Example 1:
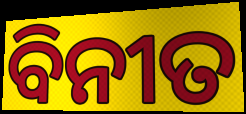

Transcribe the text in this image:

ବିନୀତ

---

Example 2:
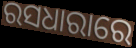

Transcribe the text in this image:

ରସଧାରାରେ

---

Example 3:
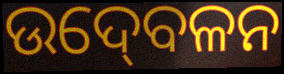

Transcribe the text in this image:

ଉଦ୍‍ବେଳନ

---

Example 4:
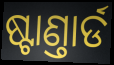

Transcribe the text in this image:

ଷ୍ଟାଣ୍ତାର୍ଡ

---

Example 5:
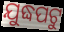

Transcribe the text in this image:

ଯୁଦ୍ଧପଟୁ